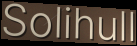
Solihull